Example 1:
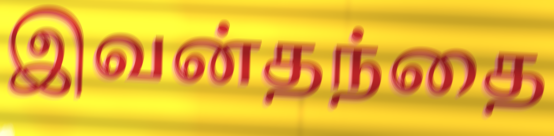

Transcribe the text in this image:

இவன்தந்தை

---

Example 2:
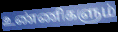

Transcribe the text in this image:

உண்ணிகளும்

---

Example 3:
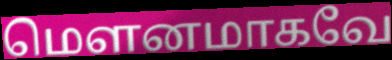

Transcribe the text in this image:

மெளனமாகவே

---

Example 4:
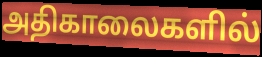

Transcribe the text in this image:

அதிகாலைகளில்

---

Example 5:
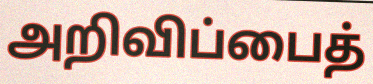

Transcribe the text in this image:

அறிவிப்பைத்